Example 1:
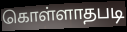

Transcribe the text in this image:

கொள்ளாதபடி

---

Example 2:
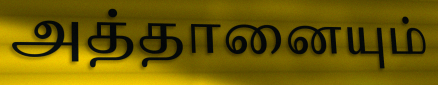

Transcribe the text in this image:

அத்தானையும்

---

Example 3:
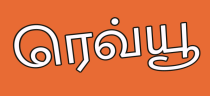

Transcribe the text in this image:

ரெவ்யூ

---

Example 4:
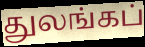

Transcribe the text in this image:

துலங்கப்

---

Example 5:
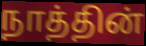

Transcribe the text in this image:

நாத்தின்